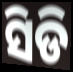
ସିଡି